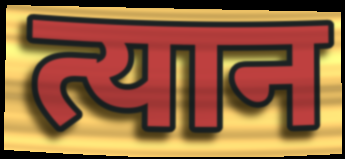
त्यान